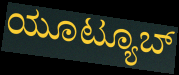
ಯೂಟ್ಯೂಬ್